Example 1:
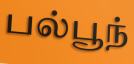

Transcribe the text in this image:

பல்பூந்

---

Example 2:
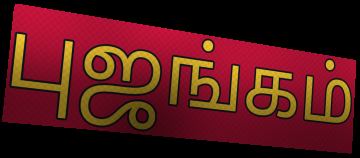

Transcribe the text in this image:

புஜங்கம்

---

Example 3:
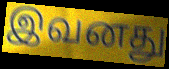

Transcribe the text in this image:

இவனது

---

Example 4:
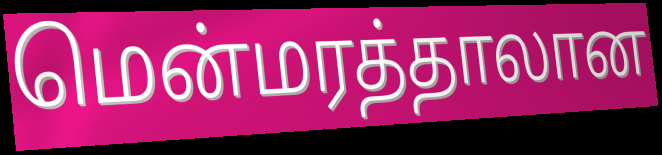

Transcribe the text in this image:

மென்மரத்தாலான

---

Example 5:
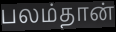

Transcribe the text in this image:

பலம்தான்